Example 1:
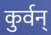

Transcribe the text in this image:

कुर्वन्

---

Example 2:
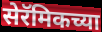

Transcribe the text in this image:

सेरॅमिकच्या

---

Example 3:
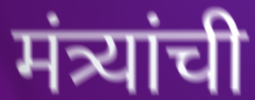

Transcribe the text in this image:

मंत्र्यांची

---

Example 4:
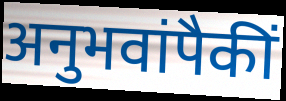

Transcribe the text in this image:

अनुभवांपैकीं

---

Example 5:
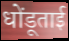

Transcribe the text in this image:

धोंडूताई